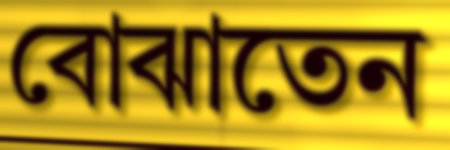
বোঝাতেন